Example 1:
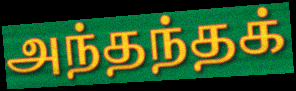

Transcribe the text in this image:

அந்தந்தக்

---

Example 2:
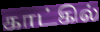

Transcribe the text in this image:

காட்கில்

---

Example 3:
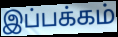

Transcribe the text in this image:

இப்பக்கம்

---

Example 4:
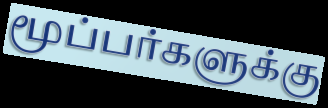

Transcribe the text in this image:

மூப்பர்களுக்கு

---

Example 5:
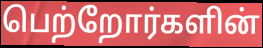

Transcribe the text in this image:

பெற்றோர்களின்